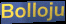
Bolloju